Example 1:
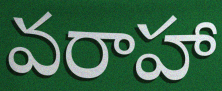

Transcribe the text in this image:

వరాహా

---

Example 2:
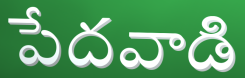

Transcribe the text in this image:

పేదవాడి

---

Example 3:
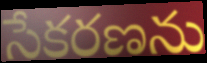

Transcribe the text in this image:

సేకరణను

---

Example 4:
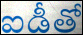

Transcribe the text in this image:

ఐడీతో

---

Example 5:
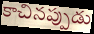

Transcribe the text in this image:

కాచినప్పుడు